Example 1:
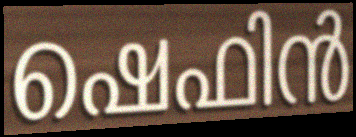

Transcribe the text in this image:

ഷെഫിൻ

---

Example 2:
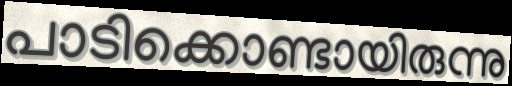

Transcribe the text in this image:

പാടിക്കൊണ്ടായിരുന്നു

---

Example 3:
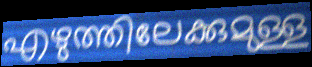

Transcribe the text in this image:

എഴുത്തിലേക്കുമുള്ള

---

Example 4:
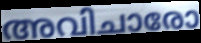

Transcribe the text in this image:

അവിചാരോ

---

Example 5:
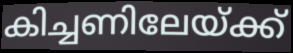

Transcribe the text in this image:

കിച്ചണിലേയ്ക്ക്